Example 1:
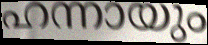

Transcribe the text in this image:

ഹന്നായും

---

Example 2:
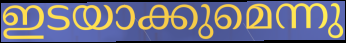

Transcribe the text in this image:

ഇടയാക്കുമെന്നു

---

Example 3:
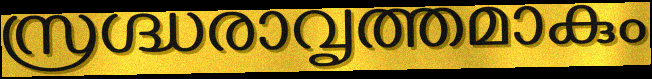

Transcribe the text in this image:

സ്രഗ്ദ്ധരാവൃത്തമാകും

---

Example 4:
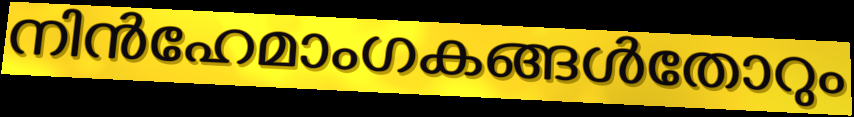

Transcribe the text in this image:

നിൻഹേമാംഗകങ്ങൾതോറും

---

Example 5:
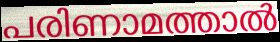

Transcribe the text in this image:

പരിണാമത്താൽ